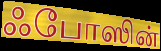
ஃபோஸின்